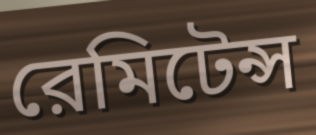
রেমিটেন্স